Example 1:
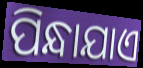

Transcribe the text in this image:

ପିନ୍ଧାଯାଏ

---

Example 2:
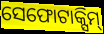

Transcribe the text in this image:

ସେଫୋଟାକ୍ସିମ୍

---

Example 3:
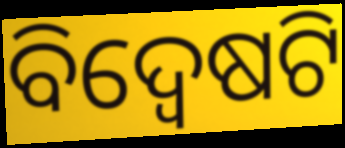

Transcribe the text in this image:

ବିଦ୍ୱେଷଟି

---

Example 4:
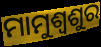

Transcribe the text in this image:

ମାମୁଶ୍ବଶୁର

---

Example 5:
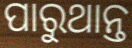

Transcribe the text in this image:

ପାରୁଥାନ୍ତ